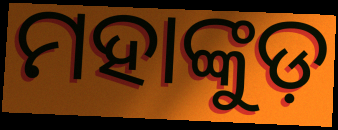
ମହାଙ୍କୁଡ଼